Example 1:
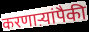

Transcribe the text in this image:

करणाऱ्‍यांपैकी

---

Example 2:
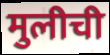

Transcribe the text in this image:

मुलीची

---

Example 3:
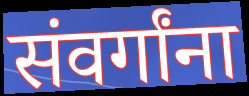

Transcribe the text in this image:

संवर्गांना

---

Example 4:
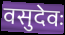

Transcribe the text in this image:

वसुदेवः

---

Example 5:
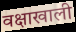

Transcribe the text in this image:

वक्षाखाली